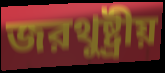
জরথুষ্ট্রীয়